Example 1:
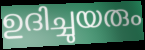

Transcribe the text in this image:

ഉദിച്ചുയരും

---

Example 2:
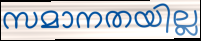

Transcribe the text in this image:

സമാനതയില്ല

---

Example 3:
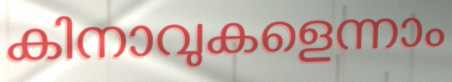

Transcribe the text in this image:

കിനാവുകളെന്നാം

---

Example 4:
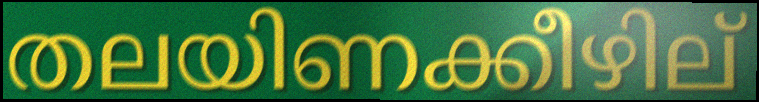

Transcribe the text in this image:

തലയിണക്കീഴില്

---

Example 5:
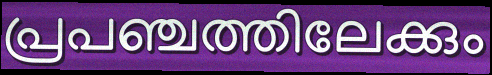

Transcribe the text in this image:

പ്രപഞ്ചത്തിലേക്കും